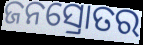
ଜନସ୍ରୋତର